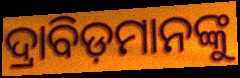
ଦ୍ରାବିଡ଼ମାନଙ୍କୁ